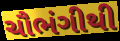
ચૌભંગીથી